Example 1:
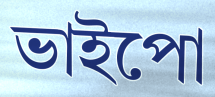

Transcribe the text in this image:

ভাইপো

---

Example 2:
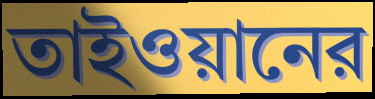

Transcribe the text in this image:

তাইওয়ানের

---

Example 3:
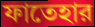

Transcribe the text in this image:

ফাতেহার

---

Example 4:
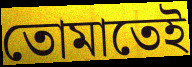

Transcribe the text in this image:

তোমাতেই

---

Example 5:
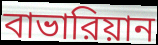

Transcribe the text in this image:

বাভারিয়ান